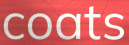
coats